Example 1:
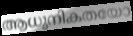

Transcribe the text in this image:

ആധുനികതയോ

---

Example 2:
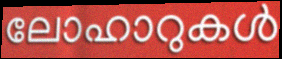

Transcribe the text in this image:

ലോഹാറുകൾ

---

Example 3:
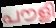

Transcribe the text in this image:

പൗളി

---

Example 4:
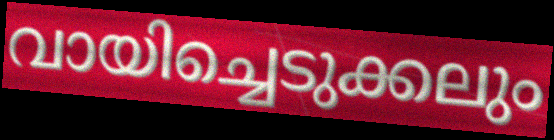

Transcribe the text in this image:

വായിച്ചെടുക്കലും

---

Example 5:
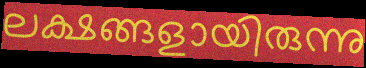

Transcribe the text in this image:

ലക്ഷങ്ങളായിരുന്നു